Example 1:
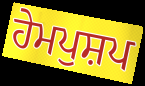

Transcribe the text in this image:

ਹੇਮਪੁਸ਼ਪ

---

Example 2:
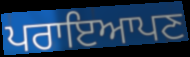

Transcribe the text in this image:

ਪਰਾਇਆਪਣ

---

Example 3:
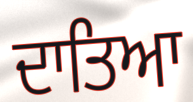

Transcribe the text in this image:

ਦਾਤਿਆ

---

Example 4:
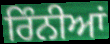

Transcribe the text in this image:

ਰਿੰਨੀਆਂ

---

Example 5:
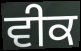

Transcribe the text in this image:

ਵੀਕ